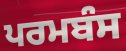
ਪਰਮਬੰਸ